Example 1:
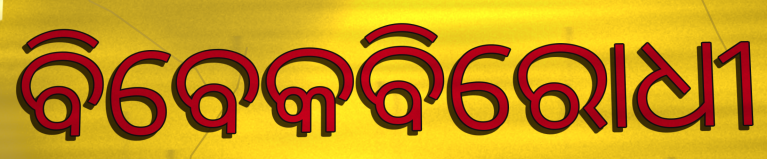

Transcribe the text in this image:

ବିବେକବିରୋଧୀ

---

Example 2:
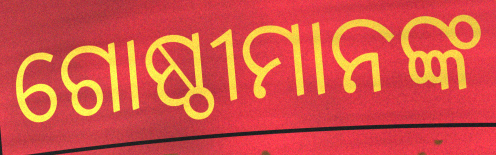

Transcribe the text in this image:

ଗୋଷ୍ଠୀମାନଙ୍କ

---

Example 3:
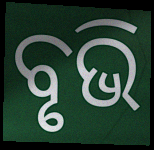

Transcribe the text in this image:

ବୃଭି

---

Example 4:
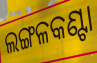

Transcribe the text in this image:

ଲଙ୍ଗଳକଣ୍ଟା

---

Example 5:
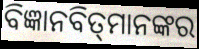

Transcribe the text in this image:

ବିଜ୍ଞାନବିତ୍‌ମାନଙ୍କର